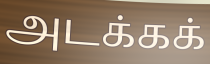
அடக்கக்